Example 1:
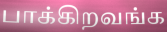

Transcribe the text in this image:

பாக்கிறவங்க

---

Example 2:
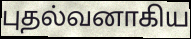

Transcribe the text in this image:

புதல்வனாகிய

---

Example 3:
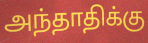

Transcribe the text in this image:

அந்தாதிக்கு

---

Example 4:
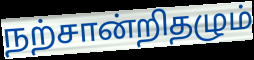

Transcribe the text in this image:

நற்சான்றிதழும்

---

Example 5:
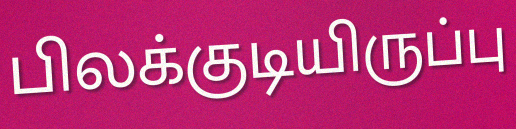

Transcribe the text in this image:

பிலக்குடியிருப்பு